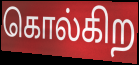
கொல்கிற